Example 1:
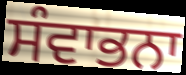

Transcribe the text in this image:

ਸੰਵਾਭਨਾ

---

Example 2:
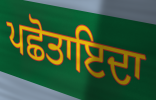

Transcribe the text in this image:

ਪਛੋਤਾਇਦਾ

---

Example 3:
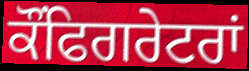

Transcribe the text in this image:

ਕੌਂਫਿਗਰੇਟਰਾਂ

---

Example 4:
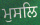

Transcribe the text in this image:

ਮੁਸਲਿ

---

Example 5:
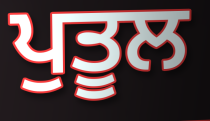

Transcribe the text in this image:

ਪੁਤੂਲ